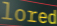
lored